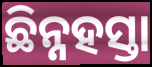
ଛିନ୍ନହସ୍ତା